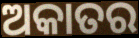
ଅକାତର